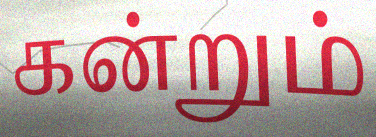
கன்றும்